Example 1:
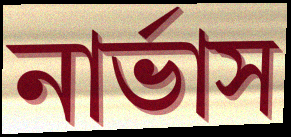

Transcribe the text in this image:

নার্ভাস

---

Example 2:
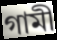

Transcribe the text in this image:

গামী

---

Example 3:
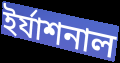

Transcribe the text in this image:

ইর্যাশনাল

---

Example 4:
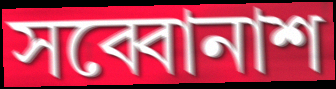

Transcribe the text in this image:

সব্বোনাশ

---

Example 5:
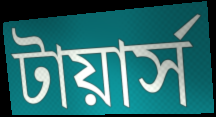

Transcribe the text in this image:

টায়ার্স